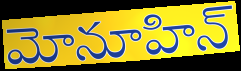
మోనూహిన్